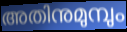
അതിനുമുമ്പും